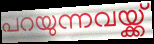
പറയുന്നവയ്ക്ക്